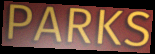
PARKS